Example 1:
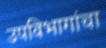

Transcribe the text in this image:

उपविभागांचा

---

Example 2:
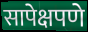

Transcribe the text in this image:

सापेक्षपणे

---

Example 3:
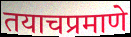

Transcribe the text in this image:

तयाचप्रमाणे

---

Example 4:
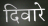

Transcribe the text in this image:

दिवारे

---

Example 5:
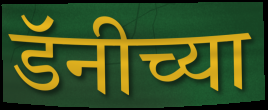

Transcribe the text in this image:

डॅनीच्या